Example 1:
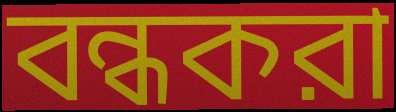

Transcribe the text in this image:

বন্ধকরা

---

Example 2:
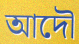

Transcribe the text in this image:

আদৌ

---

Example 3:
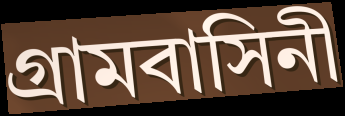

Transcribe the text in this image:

গ্রামবাসিনী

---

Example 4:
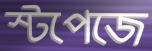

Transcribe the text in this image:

স্টপেজে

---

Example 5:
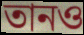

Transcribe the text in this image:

তানও